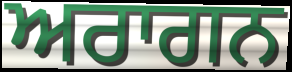
ਅਰਾਗਨ